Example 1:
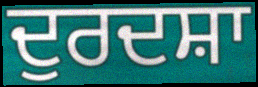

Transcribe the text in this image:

ਦੁਰਦਸ਼ਾ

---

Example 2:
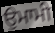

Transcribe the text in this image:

ਉਮਾਮੀ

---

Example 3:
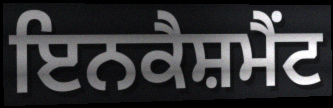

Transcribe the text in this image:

ਇਨਕੈਸ਼ਮੈਂਟ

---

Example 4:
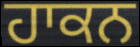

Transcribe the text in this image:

ਹਾਕਨ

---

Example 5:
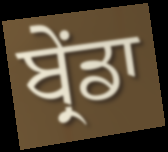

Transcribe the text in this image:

ਬ੍ਰੇਂਡਾ